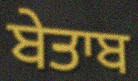
ਬੇਤਾਬ